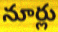
నూర్లు